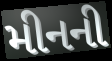
મીનની